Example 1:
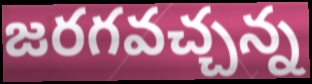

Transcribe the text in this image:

జరగవచ్చన్న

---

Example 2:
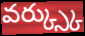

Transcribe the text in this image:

వర్క్స్కు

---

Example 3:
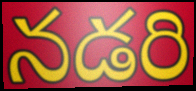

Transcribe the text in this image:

నడరి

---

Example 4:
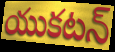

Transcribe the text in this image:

యుకటన్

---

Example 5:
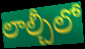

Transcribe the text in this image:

లాల్చీలో